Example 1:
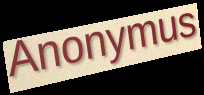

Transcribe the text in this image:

Anonymus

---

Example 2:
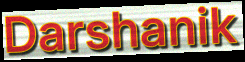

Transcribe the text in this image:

Darshanik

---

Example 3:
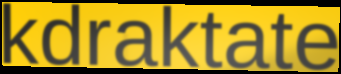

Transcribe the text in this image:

kdraktate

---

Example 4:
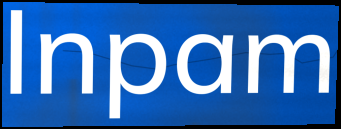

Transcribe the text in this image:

Inpam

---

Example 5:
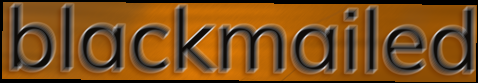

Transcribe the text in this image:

blackmailed